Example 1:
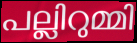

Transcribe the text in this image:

പല്ലിറുമ്മി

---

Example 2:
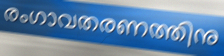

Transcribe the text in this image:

രംഗാവതരണത്തിനു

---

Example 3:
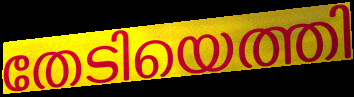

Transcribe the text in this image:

തേടിയെത്തി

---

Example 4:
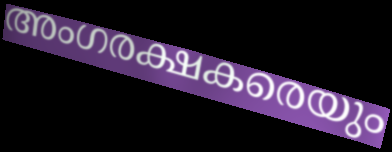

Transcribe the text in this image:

അംഗരക്ഷകരെയും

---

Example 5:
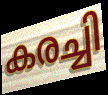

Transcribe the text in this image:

കരച്ചി